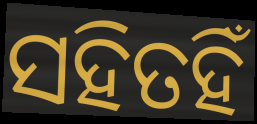
ସହିତହିଁ